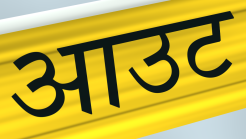
आउट